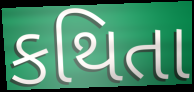
કથિતા